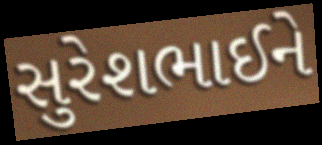
સુરેશભાઈને